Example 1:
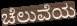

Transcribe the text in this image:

ಚೆಲುವೆಯ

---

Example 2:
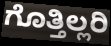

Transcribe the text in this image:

ಗೊತ್ತಿಲ್ಲರಿ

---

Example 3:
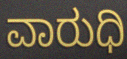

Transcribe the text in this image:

ವಾರುಧಿ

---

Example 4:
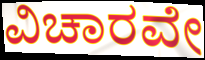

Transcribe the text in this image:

ವಿಚಾರವೇ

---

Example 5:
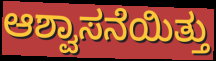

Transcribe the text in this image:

ಆಶ್ವಾಸನೆಯಿತ್ತು